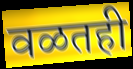
वळतही